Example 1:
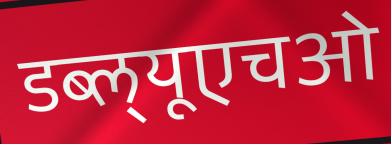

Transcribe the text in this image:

डब्ल्यूएचओ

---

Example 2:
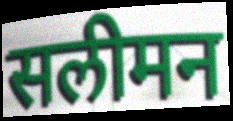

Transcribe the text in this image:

सलीमन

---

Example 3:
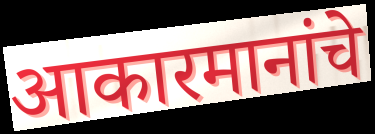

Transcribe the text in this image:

आकारमानांचे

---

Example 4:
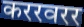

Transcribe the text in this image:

कररवरर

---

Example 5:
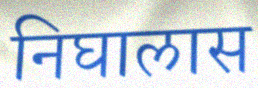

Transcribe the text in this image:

निघालास